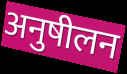
अनुषीलन